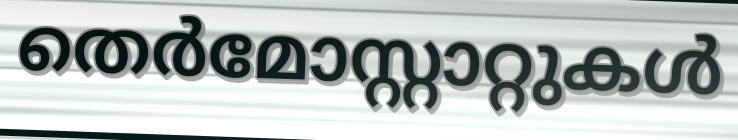
തെർമോസ്റ്റാറ്റുകൾ